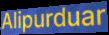
Alipurduar